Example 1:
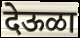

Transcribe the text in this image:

देऊळा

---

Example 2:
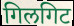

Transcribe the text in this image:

गिलगिट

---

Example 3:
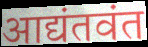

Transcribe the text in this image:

आद्यंतवंत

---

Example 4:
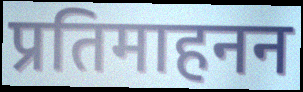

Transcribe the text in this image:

प्रतिमाहनन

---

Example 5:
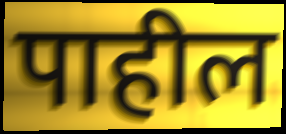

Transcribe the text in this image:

पाहील